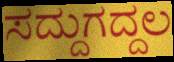
ಸದ್ದುಗದ್ದಲ